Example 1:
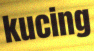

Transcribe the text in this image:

kucing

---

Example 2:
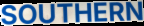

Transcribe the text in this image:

SOUTHERN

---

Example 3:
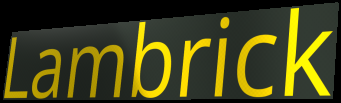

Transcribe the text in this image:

Lambrick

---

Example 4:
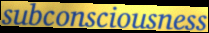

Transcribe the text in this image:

subconsciousness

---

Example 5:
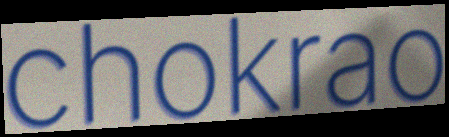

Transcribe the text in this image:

chokrao